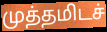
முத்தமிடச்